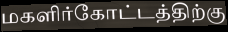
மகளிர்கோட்டத்திற்கு